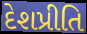
દેશપ્રીતિ